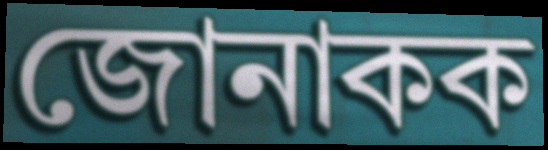
জোনাকক